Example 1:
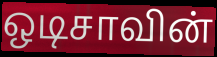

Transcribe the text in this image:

ஒடிசாவின்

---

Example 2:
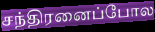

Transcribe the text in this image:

சந்திரனைப்போல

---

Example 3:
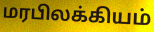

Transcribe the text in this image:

மரபிலக்கியம்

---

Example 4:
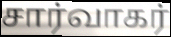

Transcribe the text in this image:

சார்வாகர்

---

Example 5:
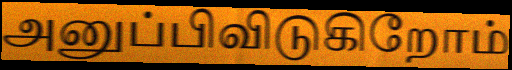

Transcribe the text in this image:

அனுப்பிவிடுகிறோம்